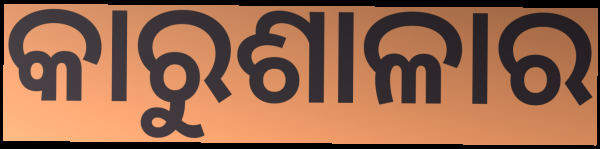
କାରୁଶାଳାର